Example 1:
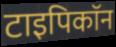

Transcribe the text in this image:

टाइपिकॉन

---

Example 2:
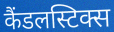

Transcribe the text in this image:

कैंडलस्टिक्स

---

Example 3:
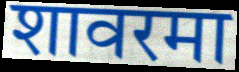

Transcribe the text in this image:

शावरमा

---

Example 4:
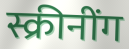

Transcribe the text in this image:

स्क्रीनींग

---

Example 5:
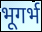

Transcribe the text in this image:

भूगर्भ